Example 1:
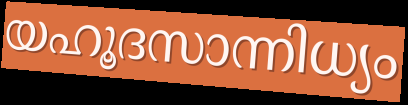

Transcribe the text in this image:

യഹൂദസാന്നിധ്യം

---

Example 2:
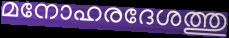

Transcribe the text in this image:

മനോഹരദേശത്തു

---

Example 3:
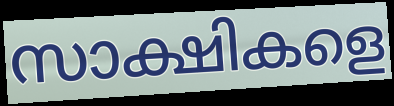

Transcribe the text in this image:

സാക്ഷികളെ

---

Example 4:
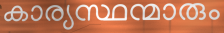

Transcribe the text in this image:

കാര്യസ്ഥന്മാരും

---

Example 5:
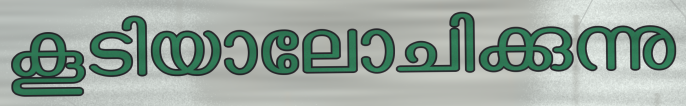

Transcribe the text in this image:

കൂടിയാലോചിക്കുന്നു